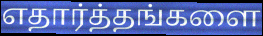
எதார்த்தங்களை